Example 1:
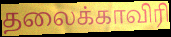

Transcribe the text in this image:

தலைக்காவிரி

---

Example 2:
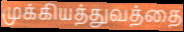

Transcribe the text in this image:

முக்கியத்துவத்தை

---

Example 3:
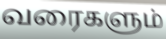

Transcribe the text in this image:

வரைகளும்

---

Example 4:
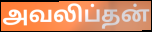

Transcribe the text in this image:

அவலிப்தன்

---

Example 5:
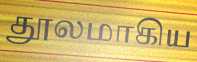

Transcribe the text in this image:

தூலமாகிய